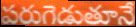
పరుగెడుతూనే